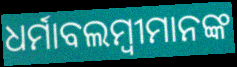
ଧର୍ମାବଲମ୍ବୀମାନଙ୍କ